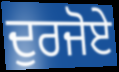
ਦੁਰਜੋਏ